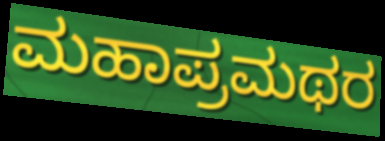
ಮಹಾಪ್ರಮಥರ